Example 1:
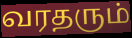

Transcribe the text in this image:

வரதரும்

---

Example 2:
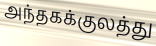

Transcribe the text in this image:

அந்தகக்குலத்து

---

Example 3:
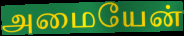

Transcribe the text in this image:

அமையேன்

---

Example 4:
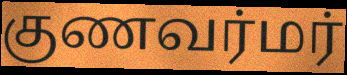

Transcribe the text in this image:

குணவர்மர்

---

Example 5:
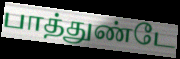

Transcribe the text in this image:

பாத்துண்டே